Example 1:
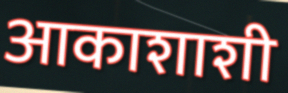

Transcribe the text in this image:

आकाशाशी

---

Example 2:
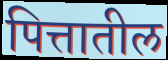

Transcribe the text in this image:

पित्तातील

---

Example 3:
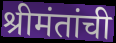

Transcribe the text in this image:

श्रीमंतांची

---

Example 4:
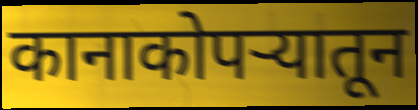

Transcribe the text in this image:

कानाकोपर्‍यातून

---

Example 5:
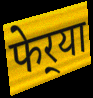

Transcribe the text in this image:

फेर्या